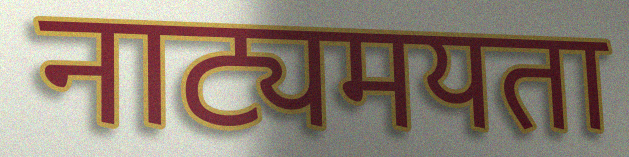
नाट्यमयता